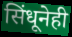
सिंधूनेही